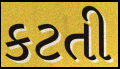
કટતી